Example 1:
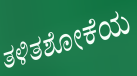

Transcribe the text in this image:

ತಳಿತಶೋಕೆಯ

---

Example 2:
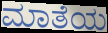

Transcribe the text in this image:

ಮಾತೆಯ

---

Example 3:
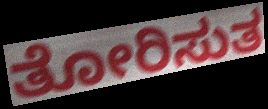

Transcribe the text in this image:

ತೋರಿಸುತ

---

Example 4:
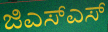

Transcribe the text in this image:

ಜಿಎಸ್ಎಸ್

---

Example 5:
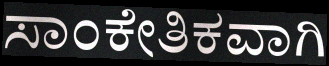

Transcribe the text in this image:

ಸಾಂಕೇತಿಕವಾಗಿ